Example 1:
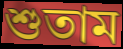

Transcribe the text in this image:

শুতাম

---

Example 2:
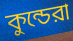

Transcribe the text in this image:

কুন্ডেরা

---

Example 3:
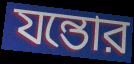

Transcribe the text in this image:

যন্তোর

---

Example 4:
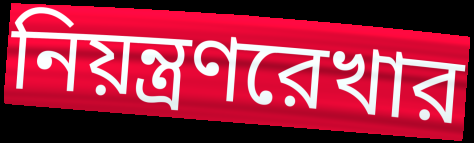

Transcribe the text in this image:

নিয়ন্ত্রণরেখার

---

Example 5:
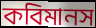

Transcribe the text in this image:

কবিমানস